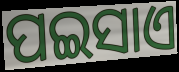
ପଇସାଏ